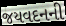
જયવદનની